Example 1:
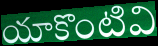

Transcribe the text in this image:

యాకొంటివి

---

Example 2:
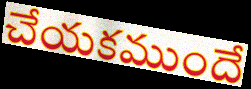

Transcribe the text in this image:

చేయకముందే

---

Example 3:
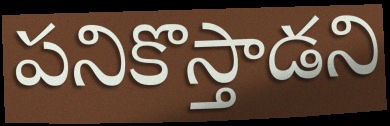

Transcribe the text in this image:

పనికొస్తాడని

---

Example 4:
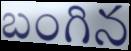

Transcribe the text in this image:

బంగిన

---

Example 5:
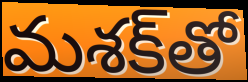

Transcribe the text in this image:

మశక్‌తో